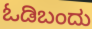
ಓಡಿಬಂದು